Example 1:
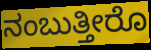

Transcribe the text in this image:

ನಂಬುತ್ತೀರೊ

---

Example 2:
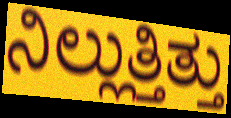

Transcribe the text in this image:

ನಿಲ್ಲುತ್ತಿತ್ತು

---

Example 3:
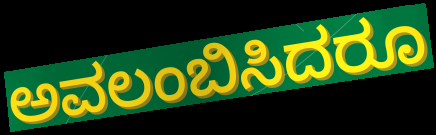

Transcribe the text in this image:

ಅವಲಂಬಿಸಿದರೂ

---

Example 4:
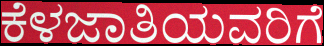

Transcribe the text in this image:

ಕೆಳಜಾತಿಯವರಿಗೆ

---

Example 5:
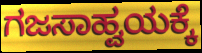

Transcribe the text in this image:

ಗಜಸಾಹ್ವಯಕ್ಕೆ